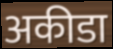
अकीडा